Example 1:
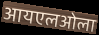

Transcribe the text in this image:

आयएलओला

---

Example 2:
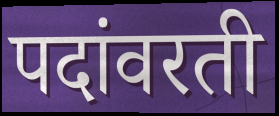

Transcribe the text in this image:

पदांवरती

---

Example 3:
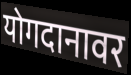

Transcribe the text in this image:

योगदानावर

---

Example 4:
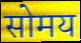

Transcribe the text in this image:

सोमय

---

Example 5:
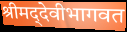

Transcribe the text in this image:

श्रीमद्‌देवीभागवत